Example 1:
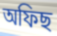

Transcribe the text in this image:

অফিছ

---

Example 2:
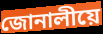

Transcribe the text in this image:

জোনালীয়ে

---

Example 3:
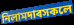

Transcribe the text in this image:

নিলামদাৰসকলে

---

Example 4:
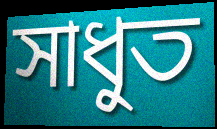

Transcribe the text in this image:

সাধুত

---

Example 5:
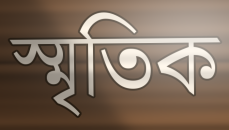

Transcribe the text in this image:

স্মৃতিক